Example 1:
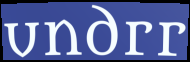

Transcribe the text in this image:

undrr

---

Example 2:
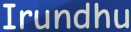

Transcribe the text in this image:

Irundhu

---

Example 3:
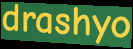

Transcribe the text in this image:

drashyo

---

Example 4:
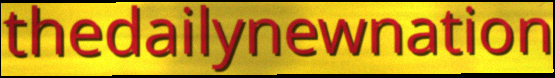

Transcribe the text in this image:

thedailynewnation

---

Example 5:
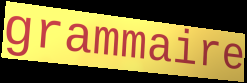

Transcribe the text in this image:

grammaire